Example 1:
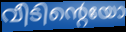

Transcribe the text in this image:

വീടിന്റെയോ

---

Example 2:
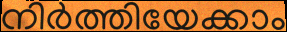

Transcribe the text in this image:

നിർത്തിയേക്കാം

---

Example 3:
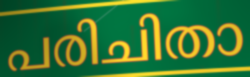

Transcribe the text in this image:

പരിചിതാ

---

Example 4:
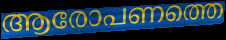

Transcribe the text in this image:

ആരോപണത്തെ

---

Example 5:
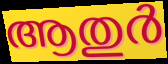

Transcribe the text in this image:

ആതുർ